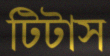
টিটাস